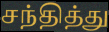
சந்தித்து